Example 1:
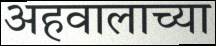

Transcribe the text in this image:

अहवालाच्या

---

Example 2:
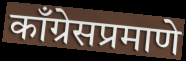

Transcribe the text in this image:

काँग्रेसप्रमाणे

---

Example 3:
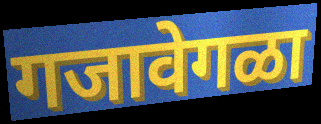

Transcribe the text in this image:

गजावेगळा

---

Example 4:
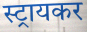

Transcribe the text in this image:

स्ट्रायकर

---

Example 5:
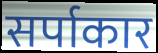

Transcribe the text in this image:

सर्पाकार